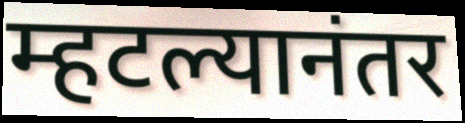
म्हटल्यानंतर